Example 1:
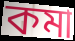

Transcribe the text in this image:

কমা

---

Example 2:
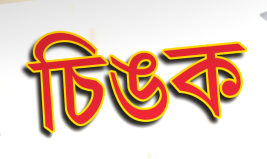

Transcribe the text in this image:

চিঙক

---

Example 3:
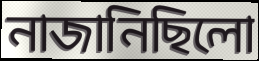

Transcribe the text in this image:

নাজানিছিলো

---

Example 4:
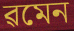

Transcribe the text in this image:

ৱমেন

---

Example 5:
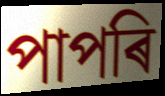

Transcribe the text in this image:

পাপৰি